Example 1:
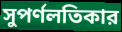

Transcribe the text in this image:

সুপর্ণলতিকার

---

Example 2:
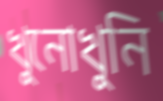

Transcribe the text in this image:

খুনোখুনি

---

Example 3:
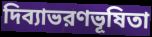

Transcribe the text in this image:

দিব্যাভরণভূষিতা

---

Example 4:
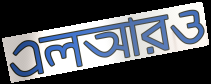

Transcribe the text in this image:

এলআরও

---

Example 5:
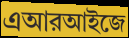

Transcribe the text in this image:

এআরআইজে